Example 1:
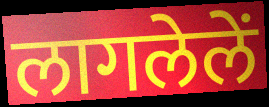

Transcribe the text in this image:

लागलेलें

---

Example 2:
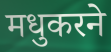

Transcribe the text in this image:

मधुकरने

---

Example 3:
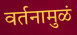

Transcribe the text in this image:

वर्तनामुळं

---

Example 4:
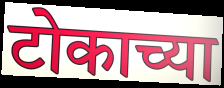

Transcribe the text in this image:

टोकाच्या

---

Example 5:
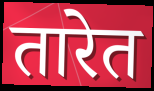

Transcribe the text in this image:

तारेत